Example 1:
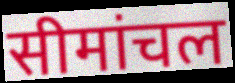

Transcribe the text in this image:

सीमांचल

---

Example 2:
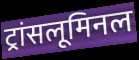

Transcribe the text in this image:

ट्रांसलूमिनल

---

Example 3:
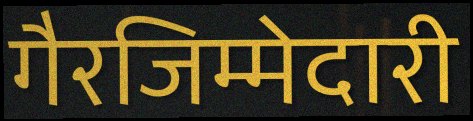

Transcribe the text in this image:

गैरजिम्मेदारी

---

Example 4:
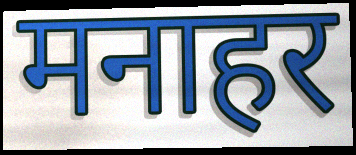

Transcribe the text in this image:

मनाहर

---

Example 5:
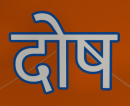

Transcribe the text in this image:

दोष